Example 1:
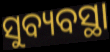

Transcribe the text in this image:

ସୁବ୍ୟବସ୍ଥା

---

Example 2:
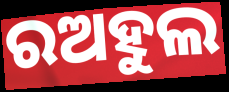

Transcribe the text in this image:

ରଅହୁଲ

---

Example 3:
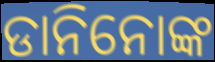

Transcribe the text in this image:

ଡାନିନୋଙ୍କ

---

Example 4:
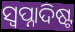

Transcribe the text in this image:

ସ୍ୱପ୍ନାଦିଷ୍ଟ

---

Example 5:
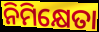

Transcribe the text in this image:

ନିମିକ୍ଷେତା